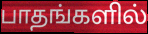
பாதங்களில்